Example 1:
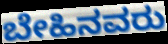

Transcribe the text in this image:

ಬೇಹಿನವರು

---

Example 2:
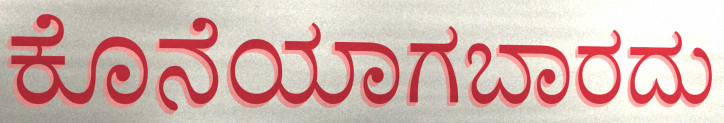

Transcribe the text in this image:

ಕೊನೆಯಾಗಬಾರದು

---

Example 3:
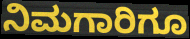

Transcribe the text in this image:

ನಿಮಗಾರಿಗೂ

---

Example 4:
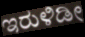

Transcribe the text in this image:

ಇರುಳಿಡೀ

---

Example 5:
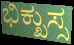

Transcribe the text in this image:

ಭಿಕ್ಖುಸ್ಸ